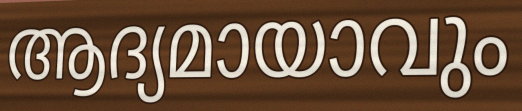
ആദ്യമായാവും